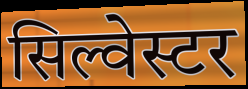
सिल्वेस्टर